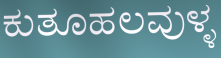
ಕುತೂಹಲವುಳ್ಳ